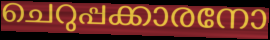
ചെറുപ്പക്കാരനോ